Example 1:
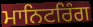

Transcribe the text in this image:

ਮਾਨਿਟਰਿੰਗ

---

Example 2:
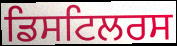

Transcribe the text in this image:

ਡਿਸਟਿਲਰਸ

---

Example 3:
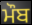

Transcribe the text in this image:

ਮੌਬ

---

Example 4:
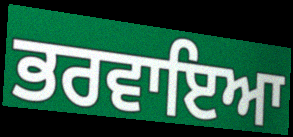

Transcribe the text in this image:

ਭਰਵਾਇਆ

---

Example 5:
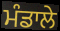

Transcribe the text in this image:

ਮੰਡਾਲੇ